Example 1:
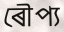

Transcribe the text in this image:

ৰৌপ্য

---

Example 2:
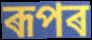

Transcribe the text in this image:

ৰূপৰ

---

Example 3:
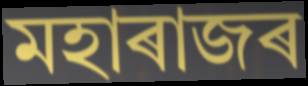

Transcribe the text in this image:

মহাৰাজৰ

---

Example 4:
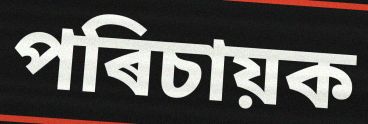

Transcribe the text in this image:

পৰিচায়ক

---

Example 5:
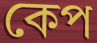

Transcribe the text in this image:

কেপ